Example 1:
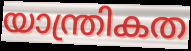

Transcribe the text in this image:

യാന്ത്രികത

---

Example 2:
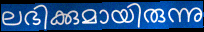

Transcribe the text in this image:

ലഭിക്കുമായിരുന്നു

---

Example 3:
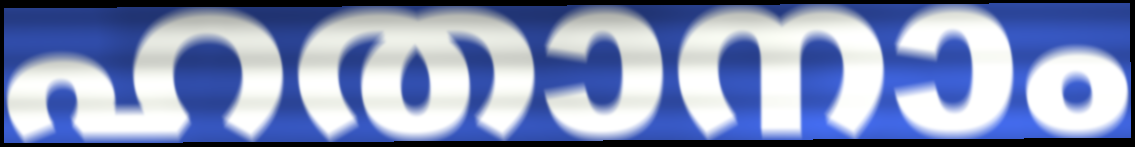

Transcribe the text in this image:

ഹതാനാം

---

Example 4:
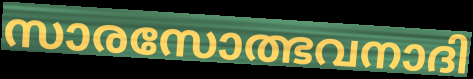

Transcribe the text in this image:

സാരസോത്ഭവനാദി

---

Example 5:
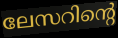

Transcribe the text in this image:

ലേസറിന്റെ